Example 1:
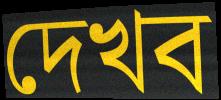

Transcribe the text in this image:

দেখব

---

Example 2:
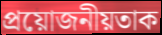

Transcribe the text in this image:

প্ৰয়োজনীয়তাক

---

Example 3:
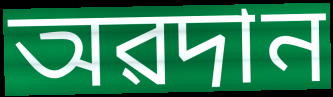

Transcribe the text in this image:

অৱদান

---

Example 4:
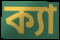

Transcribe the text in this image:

ক্যা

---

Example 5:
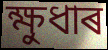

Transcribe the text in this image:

ক্ষুধাৰ